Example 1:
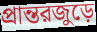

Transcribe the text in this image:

প্রান্তরজুড়ে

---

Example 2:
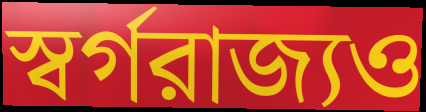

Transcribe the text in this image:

স্বর্গরাজ্যও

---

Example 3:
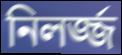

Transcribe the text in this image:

নিলর্জ্জ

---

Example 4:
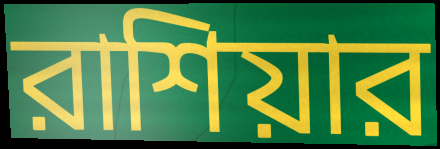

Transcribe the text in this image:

রাশিয়ার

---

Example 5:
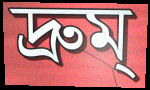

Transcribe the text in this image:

দ্রুম্